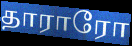
தாராரோ